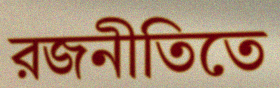
রজনীতিতে